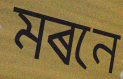
মৰনে